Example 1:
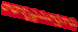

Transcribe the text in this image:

రాధాకృష్ణమూర్తిగారు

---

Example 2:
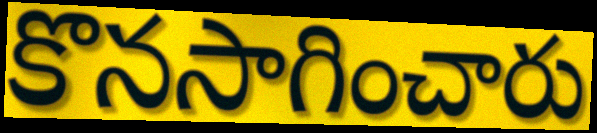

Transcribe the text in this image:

కొనసాగించారు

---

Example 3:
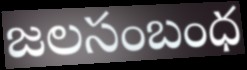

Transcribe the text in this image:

జలసంబంధ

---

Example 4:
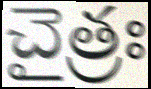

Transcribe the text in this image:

చైత్రః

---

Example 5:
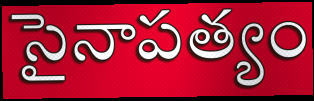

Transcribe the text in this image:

సైనాపత్యం